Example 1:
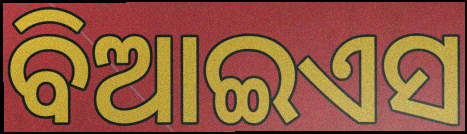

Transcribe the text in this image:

ବିଆଇଏସ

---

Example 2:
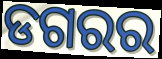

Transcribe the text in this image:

ଡଗରର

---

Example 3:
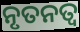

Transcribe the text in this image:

ନୃତନତ୍ୱ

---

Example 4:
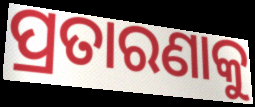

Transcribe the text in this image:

ପ୍ରତାରଣାକୁ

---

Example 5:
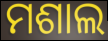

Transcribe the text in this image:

ମଶାଲ